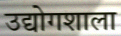
उद्योगशाला